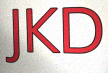
JKD